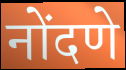
नोंदणे